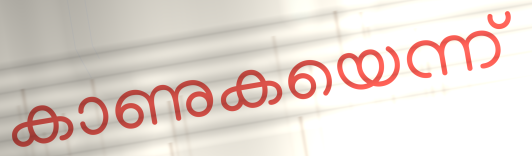
കാണുകയെന്ന്